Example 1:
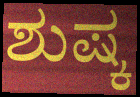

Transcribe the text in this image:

ಶುಷ್ಕ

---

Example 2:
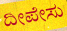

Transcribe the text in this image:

ದೀಪೇಸು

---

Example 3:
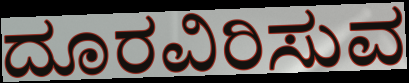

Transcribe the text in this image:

ದೂರವಿರಿಸುವ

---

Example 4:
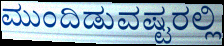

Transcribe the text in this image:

ಮುಂದಿಡುವಷ್ಟರಲ್ಲಿ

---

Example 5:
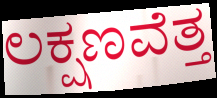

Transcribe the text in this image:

ಲಕ್ಷಣವೆತ್ತ